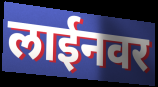
लाईनवर